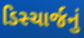
ડિસ્ચાર્જનું